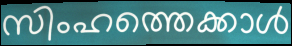
സിംഹത്തെക്കാൾ